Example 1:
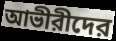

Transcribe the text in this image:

আভীরীদের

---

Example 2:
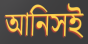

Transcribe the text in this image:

আনিসই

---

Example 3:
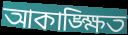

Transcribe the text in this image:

আকাঙ্ক্ষিত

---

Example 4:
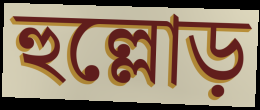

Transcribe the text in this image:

হুল্লোড়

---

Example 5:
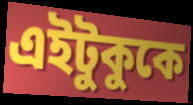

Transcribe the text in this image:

এইটুকুকে